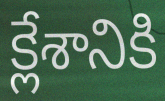
క్లేశానికి